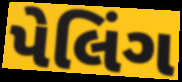
પેલિંગ